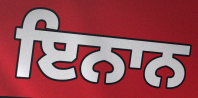
ਇਨਾਨ